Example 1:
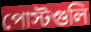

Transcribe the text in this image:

পোস্টগুলি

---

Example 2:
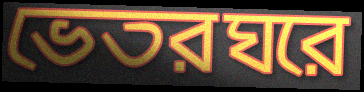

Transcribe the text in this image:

ভেতরঘরে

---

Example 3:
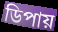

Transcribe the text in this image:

ডিপায়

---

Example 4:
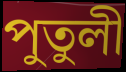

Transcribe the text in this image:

পুতুলী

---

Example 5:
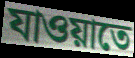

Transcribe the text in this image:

যাওয়াতে